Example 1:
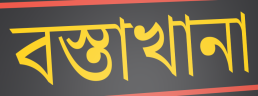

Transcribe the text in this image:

বস্তাখানা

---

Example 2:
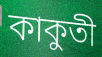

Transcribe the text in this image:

কাকুতী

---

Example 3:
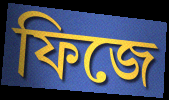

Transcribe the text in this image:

ফিজে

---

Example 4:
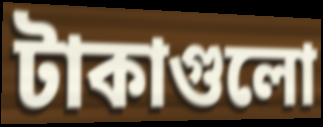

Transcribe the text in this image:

টাকাগুলো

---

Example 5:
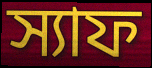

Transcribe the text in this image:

স্যাফ